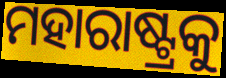
ମହାରାଷ୍ଟ୍ରକୁ